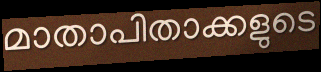
മാതാപിതാക്കളുടെ